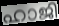
ഹാജി